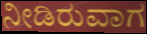
ನೀಡಿರುವಾಗ